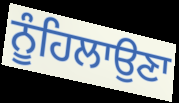
ਨੂੰਹਿਲਾਉਣਾ